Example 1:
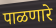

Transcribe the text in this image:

पाळणारे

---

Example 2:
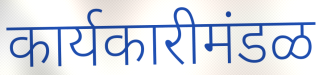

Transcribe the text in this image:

कार्यकारीमंडळ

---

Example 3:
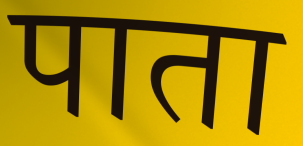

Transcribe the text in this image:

पाता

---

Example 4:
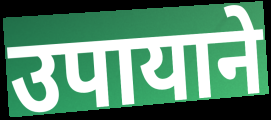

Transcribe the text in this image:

उपायाने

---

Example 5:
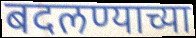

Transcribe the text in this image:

बदलण्याच्या